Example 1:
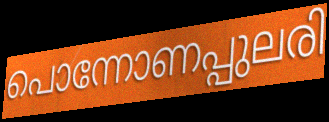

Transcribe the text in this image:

പൊന്നോണപ്പുലരി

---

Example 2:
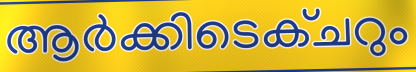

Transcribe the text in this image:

ആർക്കിടെക്ചറും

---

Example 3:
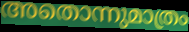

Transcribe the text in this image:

അതൊന്നുമാത്രം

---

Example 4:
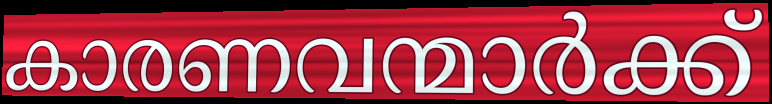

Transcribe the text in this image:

കാരണവന്മാർക്ക്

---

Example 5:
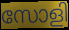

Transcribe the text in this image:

സോളി